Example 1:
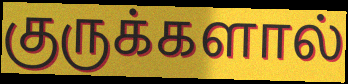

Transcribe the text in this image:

குருக்களால்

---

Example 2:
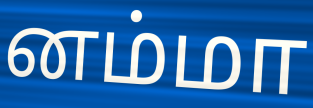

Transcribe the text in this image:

னம்மா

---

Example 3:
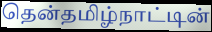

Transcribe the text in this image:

தென்தமிழ்நாட்டின்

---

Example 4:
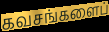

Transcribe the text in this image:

கவசங்களைப்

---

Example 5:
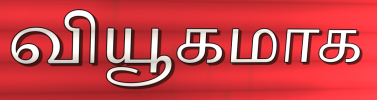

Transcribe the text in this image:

வியூகமாக